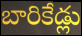
బారికేడ్లు